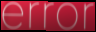
error